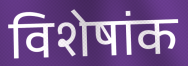
विशेषांक